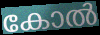
കോൽ